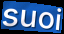
suoi